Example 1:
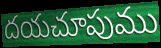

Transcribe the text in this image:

దయచూపుము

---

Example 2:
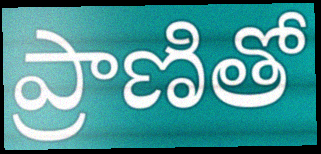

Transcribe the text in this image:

ప్రాణితో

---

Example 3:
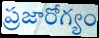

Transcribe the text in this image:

ప్రజారోగ్యం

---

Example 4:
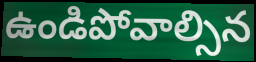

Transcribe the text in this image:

ఉండిపోవాల్సిన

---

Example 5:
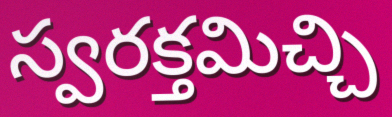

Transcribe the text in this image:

స్వరక్తమిచ్చి